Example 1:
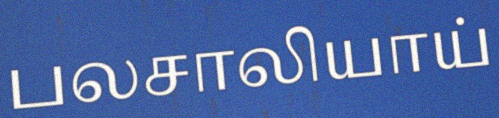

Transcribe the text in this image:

பலசாலியாய்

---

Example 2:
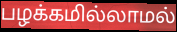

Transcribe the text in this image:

பழக்கமில்லாமல்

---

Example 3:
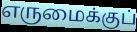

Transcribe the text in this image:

எருமைக்குப்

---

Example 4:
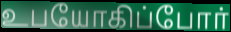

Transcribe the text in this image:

உபயோகிப்போர்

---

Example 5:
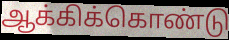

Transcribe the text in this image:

ஆக்கிக்கொண்டு